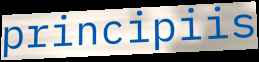
principiis